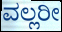
ವಲ್ಲರೀ